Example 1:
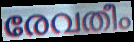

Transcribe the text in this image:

രേവതീം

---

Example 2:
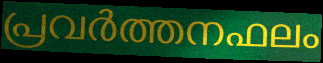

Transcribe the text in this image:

പ്രവർത്തനഫലം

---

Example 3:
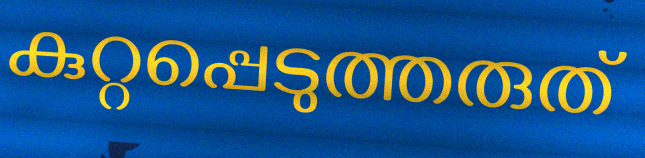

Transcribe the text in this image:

കുറ്റപ്പെടുത്തരുത്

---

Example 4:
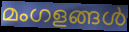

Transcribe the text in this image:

മംഗളങ്ങൾ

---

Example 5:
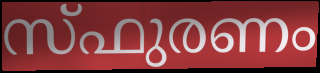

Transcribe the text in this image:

സ്ഫുരണം